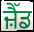
ਜ਼ੈੱਡ